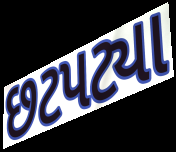
છટપટ્યા